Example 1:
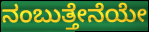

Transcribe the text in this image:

ನಂಬುತ್ತೇನೆಯೇ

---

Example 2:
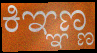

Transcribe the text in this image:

ಕಿಞ್ಞಣ್ಣ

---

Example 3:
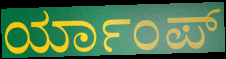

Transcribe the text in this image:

ರ್ಯಾಂಪ್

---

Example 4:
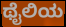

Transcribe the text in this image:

ಥೈಲಿಯ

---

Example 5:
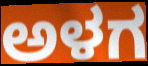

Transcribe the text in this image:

ಅಳಗ